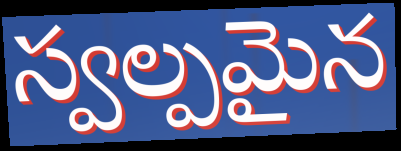
స్వల్పమైన